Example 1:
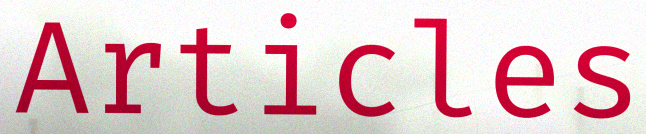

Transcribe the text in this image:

Articles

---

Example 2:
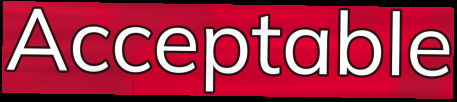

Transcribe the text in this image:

Acceptable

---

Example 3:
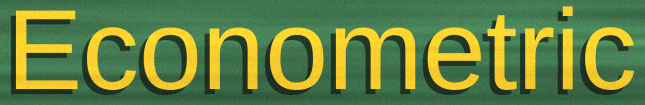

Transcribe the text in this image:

Econometric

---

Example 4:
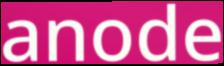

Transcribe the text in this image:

anode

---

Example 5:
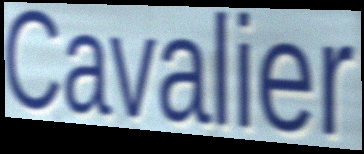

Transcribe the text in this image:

Cavalier